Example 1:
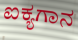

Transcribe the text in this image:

ಐಕ್ಯಗಾನ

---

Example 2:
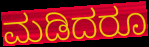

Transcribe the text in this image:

ಮಡಿದರೂ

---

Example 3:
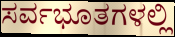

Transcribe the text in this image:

ಸರ್ವಭೂತಗಳಲ್ಲಿ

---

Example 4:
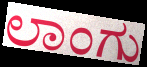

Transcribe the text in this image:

ಲಾಂಗು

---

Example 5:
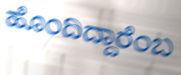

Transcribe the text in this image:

ಹೊಂದಿದ್ದಾರೆಂಬ